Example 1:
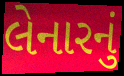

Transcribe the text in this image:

લેનારનું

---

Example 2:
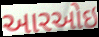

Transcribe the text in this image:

આરઓઇ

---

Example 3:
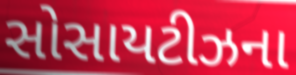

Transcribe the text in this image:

સોસાયટીઝના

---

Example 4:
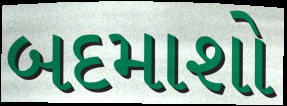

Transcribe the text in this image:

બદમાશો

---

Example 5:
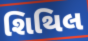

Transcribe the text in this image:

શિથિલ